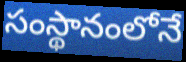
సంస్థానంలోనే